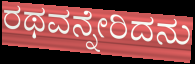
ರಥವನ್ನೇರಿದನು